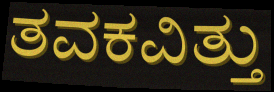
ತವಕವಿತ್ತು